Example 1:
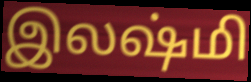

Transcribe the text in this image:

இலஷ்மி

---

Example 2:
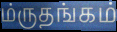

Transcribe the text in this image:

ம்ருதங்கம்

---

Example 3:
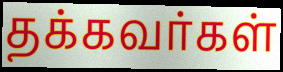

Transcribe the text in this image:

தக்கவர்கள்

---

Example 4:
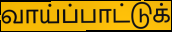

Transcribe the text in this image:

வாய்ப்பாட்டுக்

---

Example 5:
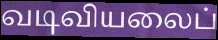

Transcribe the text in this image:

வடிவியலைப்